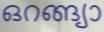
ഒറങ്ങ്യാ